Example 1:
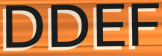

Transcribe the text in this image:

DDEF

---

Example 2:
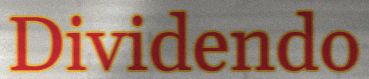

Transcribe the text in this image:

Dividendo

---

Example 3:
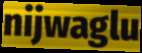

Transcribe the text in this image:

nijwaglu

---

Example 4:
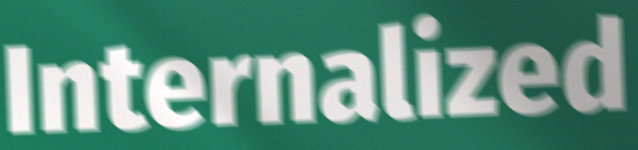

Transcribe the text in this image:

Internalized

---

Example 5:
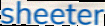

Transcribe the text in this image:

sheeter